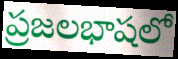
ప్రజలభాషలో